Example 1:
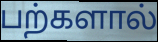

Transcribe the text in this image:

பற்களால்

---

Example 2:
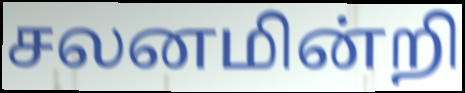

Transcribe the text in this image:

சலனமின்றி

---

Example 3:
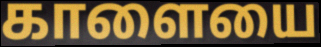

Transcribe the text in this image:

காளையை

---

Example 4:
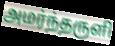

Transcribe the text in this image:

அமர்ந்தருளி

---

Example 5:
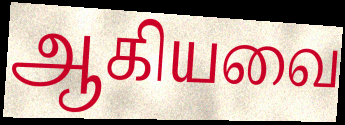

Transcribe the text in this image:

ஆகியவை